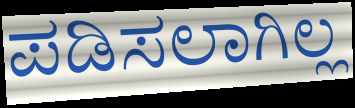
ಪಡಿಸಲಾಗಿಲ್ಲ